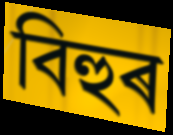
বিহুৰ